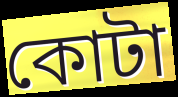
কোটা